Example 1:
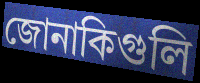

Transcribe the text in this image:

জোনাকিগুলি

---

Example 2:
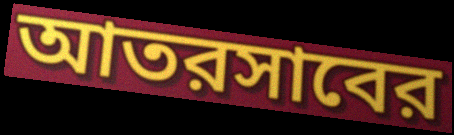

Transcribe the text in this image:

আতরসাবের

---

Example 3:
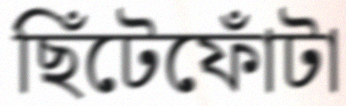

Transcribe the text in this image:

ছিঁটেফোঁটা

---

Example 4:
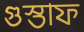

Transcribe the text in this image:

গুস্তাফ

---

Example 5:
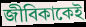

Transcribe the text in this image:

জীবিকাকেই